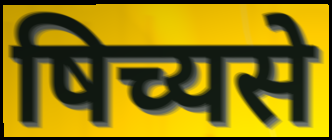
षिच्यसे